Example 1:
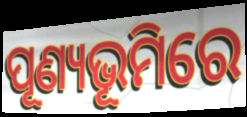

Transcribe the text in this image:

ପୂଣ୍ୟଭୂମିରେ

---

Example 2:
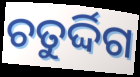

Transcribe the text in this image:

ଚତୁର୍ଦ୍ଦିଗ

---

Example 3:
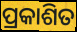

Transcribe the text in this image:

ପ୍ରକାଶିତ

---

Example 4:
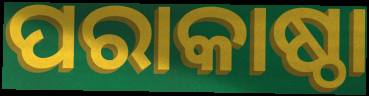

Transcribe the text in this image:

ପରାକାଷ୍ଠା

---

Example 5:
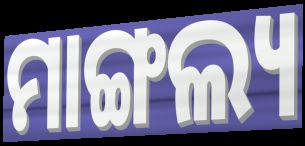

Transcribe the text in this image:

ମାଙ୍ଗଲ୍ୟ